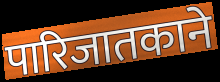
पारिजातकाने